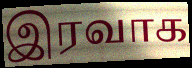
இரவாக